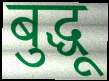
बुद्धू